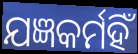
ଯଜ୍ଞକର୍ମହିଁ